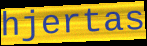
hjertas